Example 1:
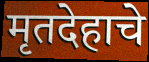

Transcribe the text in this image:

मृतदेहाचे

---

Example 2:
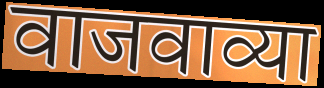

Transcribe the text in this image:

वाजवाव्या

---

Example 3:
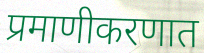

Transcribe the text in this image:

प्रमाणीकरणात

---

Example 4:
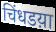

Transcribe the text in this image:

चिंधडय़ा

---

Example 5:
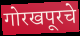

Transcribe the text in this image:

गोरखपूरचे